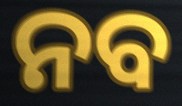
ନବ